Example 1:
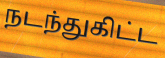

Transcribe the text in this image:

நடந்துகிட்ட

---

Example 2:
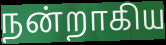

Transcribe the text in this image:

நன்றாகிய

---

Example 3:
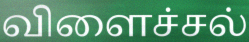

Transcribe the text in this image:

விளைச்சல்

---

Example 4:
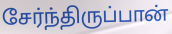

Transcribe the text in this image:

சேர்ந்திருப்பான்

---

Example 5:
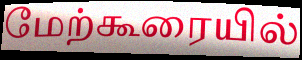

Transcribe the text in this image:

மேற்கூரையில்